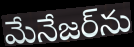
మేనేజర్‌ను